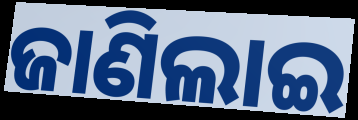
ଜାଣିଲାଇ